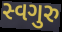
સ્વગુરુ